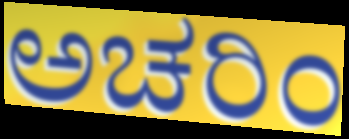
ಅಚರಿಂ